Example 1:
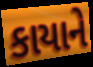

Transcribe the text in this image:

કાયાને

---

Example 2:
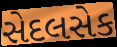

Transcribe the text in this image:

સેદલસેક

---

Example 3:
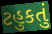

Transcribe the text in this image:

ટહુકતું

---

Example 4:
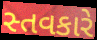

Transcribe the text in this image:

સ્તવકારે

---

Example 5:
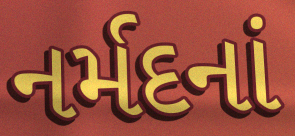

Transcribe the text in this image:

નર્મદનાં